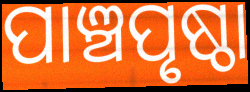
ପାଞ୍ଚପୃଷ୍ଠା